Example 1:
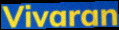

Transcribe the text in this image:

Vivaran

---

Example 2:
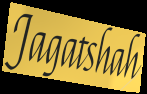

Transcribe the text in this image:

Jagatshah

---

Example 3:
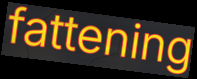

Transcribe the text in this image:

fattening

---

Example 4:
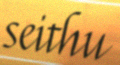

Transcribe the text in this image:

seithu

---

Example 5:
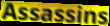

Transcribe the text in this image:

Assassins